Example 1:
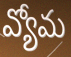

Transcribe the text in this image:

వ్యోమ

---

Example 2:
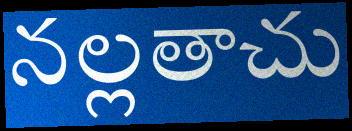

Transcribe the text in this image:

నల్లతాచు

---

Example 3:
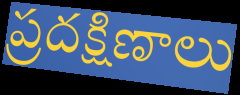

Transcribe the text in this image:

ప్రదక్షిణాలు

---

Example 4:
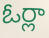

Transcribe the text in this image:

ఓర్లా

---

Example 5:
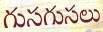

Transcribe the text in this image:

గుసగుసలు